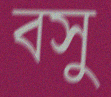
বসু